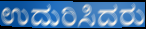
ಉದುರಿಸಿದರು